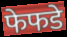
फेफडे